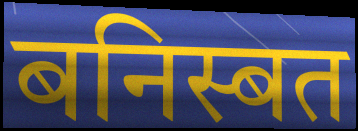
बनिस्‍बत